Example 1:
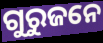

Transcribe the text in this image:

ଗୁରୁଜନେ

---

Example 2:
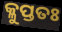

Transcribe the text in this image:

କ୍ଳୁପ୍ତତଃ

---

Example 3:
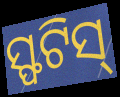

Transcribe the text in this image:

ସ୍ଫଟିସ୍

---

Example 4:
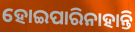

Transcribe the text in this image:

ହୋଇପାରିନାହାନ୍ତି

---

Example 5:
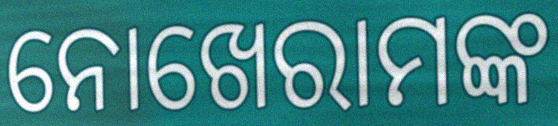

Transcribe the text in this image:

ନୋଖେରାମଙ୍କ